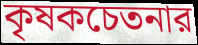
কৃষকচেতনার